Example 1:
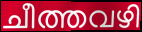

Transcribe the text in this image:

ചീത്തവഴി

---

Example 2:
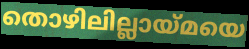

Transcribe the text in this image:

തൊഴിലില്ലായ്മയെ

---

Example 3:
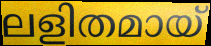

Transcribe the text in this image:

ലളിതമായ്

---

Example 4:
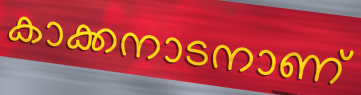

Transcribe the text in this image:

കാക്കനാടനാണ്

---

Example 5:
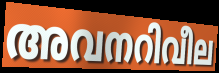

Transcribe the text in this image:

അവനറിവീല